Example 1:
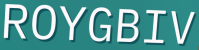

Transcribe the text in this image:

ROYGBIV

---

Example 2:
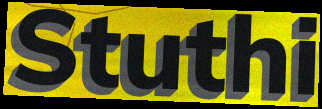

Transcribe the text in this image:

Stuthi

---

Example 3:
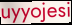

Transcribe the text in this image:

uyyojesi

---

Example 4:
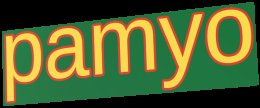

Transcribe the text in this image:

pamyo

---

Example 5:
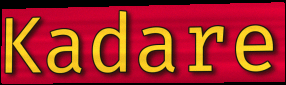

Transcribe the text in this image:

Kadare